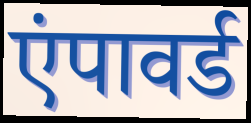
एंपावर्ड